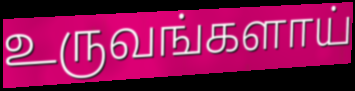
உருவங்களாய்